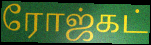
ரோஜ்கட்